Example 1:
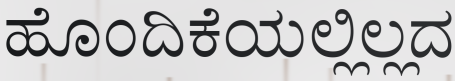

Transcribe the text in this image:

ಹೊಂದಿಕೆಯಲ್ಲಿಲ್ಲದ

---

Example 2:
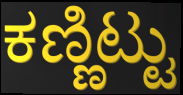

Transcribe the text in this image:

ಕಣ್ಣಿಟ್ಟು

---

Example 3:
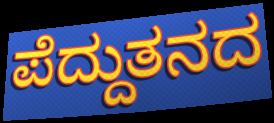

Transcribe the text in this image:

ಪೆದ್ದುತನದ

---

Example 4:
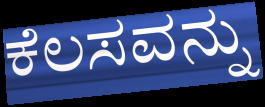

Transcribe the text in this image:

ಕೆಲಸವನ್ನು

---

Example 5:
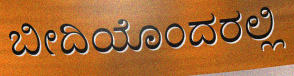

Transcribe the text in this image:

ಬೀದಿಯೊಂದರಲ್ಲಿ